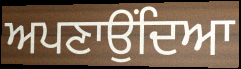
ਅਪਣਾਉਂਦਿਆ